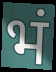
भं